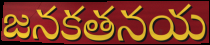
జనకతనయ